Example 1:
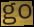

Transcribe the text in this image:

go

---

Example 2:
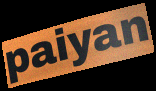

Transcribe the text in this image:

paiyan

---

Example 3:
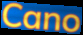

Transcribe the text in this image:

Cano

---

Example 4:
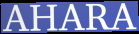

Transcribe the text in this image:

AHARA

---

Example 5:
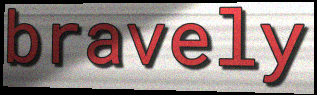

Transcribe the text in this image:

bravely